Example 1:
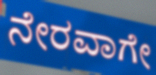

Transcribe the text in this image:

ನೇರವಾಗೇ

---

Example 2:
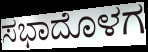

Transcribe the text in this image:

ಸಭಾದೊಳಗ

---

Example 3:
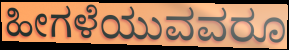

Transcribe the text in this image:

ಹೀಗಳೆಯುವವರೂ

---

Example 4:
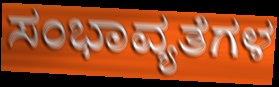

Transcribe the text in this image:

ಸಂಭಾವ್ಯತೆಗಳ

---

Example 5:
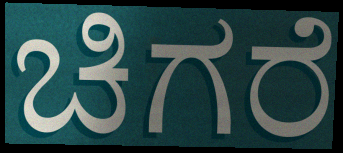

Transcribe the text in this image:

ಚಿಗರೆ